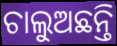
ଚାଲୁଅଛନ୍ତି